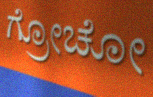
ಗ್ರೋಚೋ